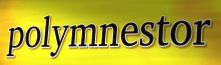
polymnestor